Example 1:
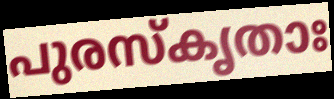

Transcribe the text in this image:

പുരസ്കൃതാഃ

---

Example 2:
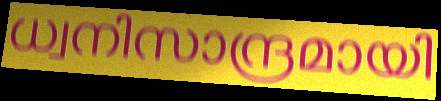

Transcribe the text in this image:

ധ്വനിസാന്ദ്രമായി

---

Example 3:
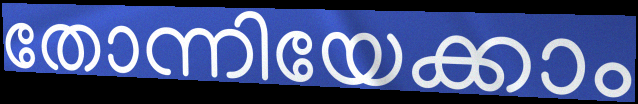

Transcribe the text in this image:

തോന്നിയേക്കാം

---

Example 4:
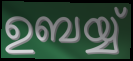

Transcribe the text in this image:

ഉബയ്യ്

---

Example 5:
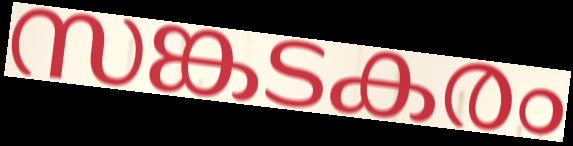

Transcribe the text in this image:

സങ്കടകരം